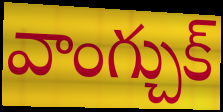
వాంగ్చుక్